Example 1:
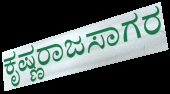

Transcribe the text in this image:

ಕೃಷ್ಣರಾಜಸಾಗರ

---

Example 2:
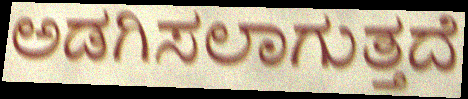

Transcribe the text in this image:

ಅಡಗಿಸಲಾಗುತ್ತದೆ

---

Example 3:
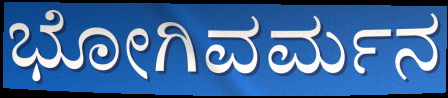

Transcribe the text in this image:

ಭೋಗಿವರ್ಮನ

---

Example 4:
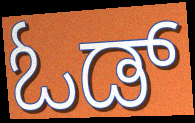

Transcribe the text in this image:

ಓಡ್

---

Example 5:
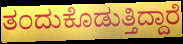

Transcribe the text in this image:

ತಂದುಕೊಡುತ್ತಿದ್ದಾರೆ